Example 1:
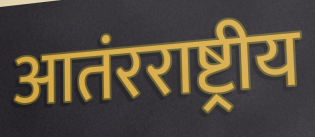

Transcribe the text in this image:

आतंरराष्ट्रीय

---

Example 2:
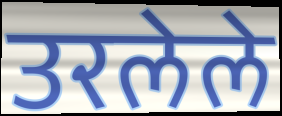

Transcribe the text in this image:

उरलेले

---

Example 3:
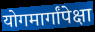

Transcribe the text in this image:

योगमार्गांपेक्षा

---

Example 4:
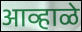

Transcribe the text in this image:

आव्हाळे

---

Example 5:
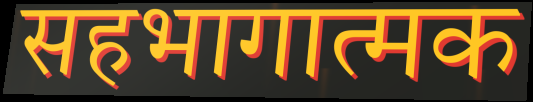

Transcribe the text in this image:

सहभागात्मक